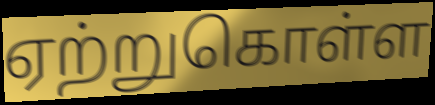
ஏற்றுகொள்ள